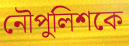
নৌপুলিশকে